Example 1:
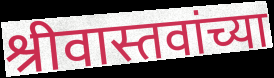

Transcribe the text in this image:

श्रीवास्तवांच्या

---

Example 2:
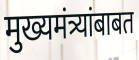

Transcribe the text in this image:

मुख्यमंत्र्यांबाबत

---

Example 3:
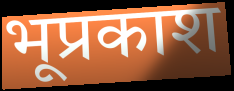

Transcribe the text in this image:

भूप्रकाश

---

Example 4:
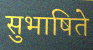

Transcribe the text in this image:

सुभाषिते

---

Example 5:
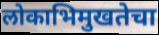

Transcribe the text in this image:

लोकाभिमुखतेचा